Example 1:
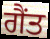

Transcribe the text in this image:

ਗੈਂਤ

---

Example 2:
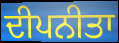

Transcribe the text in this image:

ਦੀਪਨੀਤਾ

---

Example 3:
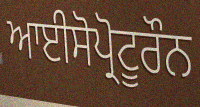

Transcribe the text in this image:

ਆਈਸੋਪ੍ਰੋਟੂਰੌਨ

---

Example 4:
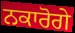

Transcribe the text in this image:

ਨਕਾਰੋਗੇ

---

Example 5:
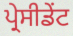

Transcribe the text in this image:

ਪ੍ਰੇਸੀਡੇਂਟ